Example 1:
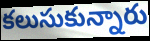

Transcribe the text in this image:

కలుసుకున్నారు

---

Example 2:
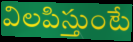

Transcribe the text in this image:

విలపిస్తుంటే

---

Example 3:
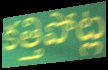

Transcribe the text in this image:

కత్తిపోట్ల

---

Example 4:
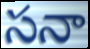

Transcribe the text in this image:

సనా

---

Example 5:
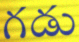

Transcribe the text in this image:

గడు